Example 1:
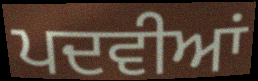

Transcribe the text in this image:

ਪਦਵੀਆਂ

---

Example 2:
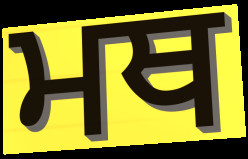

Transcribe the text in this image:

ਮਥ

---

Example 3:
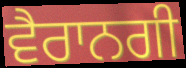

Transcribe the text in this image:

ਵੈਰਾਨਗੀ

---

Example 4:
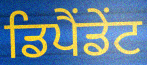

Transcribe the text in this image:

ਡਿਪੈਂਡੇਂਟ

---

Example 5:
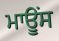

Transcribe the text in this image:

ਮਾਊਂਸ